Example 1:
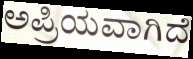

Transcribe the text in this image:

ಅಪ್ರಿಯವಾಗಿದೆ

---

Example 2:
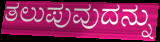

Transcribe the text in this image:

ತಲುಪುವುದನ್ನು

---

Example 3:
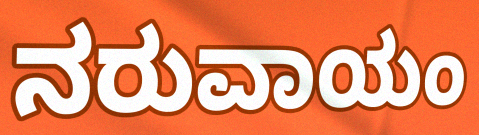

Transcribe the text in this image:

ನರುವಾಯಂ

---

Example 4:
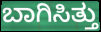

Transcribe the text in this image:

ಬಾಗಿಸಿತ್ತು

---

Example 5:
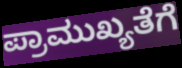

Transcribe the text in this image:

ಪ್ರಾಮುಖ್ಯತೆಗೆ